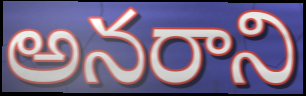
అనరాని